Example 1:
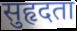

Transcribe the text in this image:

सुहृदता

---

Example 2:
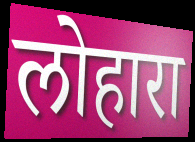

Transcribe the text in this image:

लोहारा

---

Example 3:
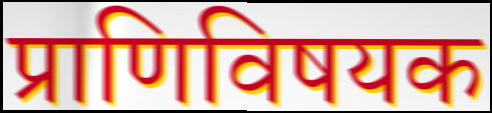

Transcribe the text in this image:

प्राणिविषयक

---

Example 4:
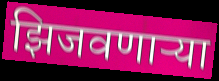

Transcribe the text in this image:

झिजवणाऱ्या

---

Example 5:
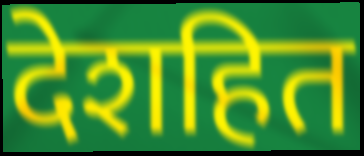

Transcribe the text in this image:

देशहित